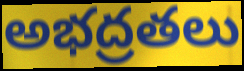
అభద్రతలు